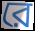
রে